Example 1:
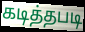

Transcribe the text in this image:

கடித்தபடி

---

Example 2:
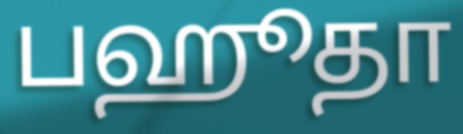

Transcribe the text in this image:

பஹூதா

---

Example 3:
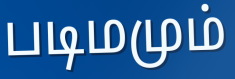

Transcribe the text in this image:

படிமமும்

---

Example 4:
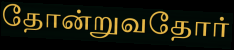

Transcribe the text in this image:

தோன்றுவதோர்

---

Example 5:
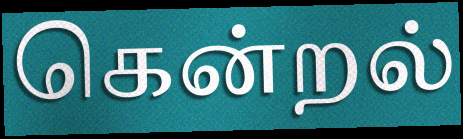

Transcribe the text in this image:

கென்றல்